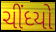
ચીંધ્યો